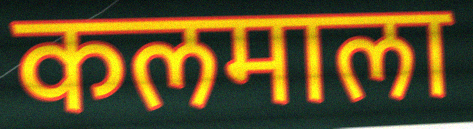
कलमाला